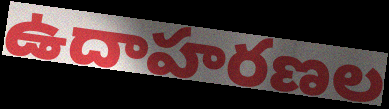
ఉదాహరణల